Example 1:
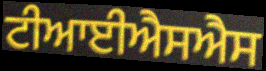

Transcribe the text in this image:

ਟੀਆਈਐਸਐਸ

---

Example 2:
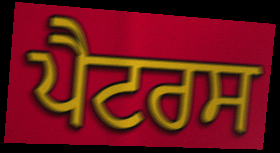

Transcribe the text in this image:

ਪੈਟਰਸ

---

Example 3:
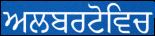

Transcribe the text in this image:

ਅਲਬਰਟੋਵਿਚ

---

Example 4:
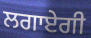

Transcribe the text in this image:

ਲਗਾਏਗੀ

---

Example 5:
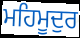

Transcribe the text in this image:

ਮਹਿਮੂਦੁਰ